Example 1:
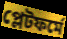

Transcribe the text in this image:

প্লেটফৰ্মে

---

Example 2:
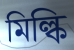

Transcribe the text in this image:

মিল্কি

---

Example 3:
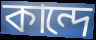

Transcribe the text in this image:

কান্দে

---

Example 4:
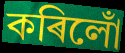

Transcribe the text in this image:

কৰিলোঁ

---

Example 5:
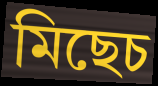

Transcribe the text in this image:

মিছেচ